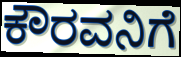
ಕೌರವನಿಗೆ